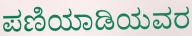
ಪಣಿಯಾಡಿಯವರ